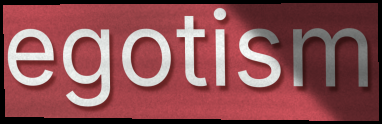
egotism